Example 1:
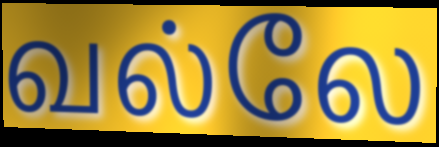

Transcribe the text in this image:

வல்லே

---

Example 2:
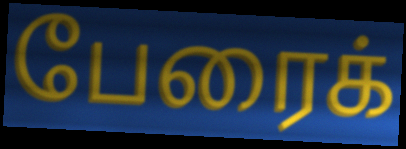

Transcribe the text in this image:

பேரைக்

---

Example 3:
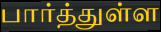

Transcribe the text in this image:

பார்த்துள்ள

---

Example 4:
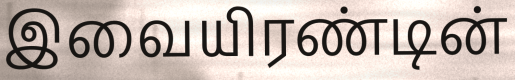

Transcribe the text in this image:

இவையிரண்டின்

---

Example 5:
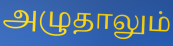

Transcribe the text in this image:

அழுதாலும்